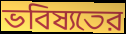
ভবিষ্যতের